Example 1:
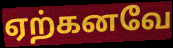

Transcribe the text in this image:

ஏற்கனவே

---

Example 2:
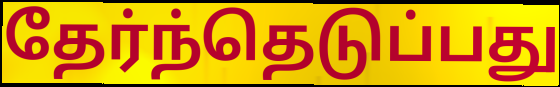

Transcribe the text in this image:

தேர்ந்தெடுப்பது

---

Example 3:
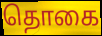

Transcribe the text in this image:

தொகை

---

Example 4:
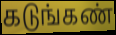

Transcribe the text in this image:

கடுங்கண்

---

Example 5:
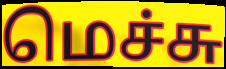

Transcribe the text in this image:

மெச்சு